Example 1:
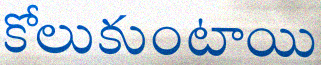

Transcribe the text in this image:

కోలుకుంటాయి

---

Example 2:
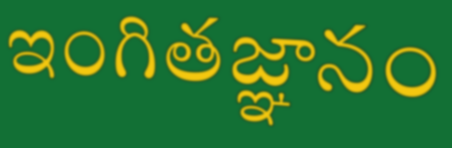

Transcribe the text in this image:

ఇంగితజ్ఞానం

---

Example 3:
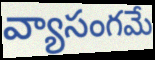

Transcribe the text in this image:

వ్యాసంగమే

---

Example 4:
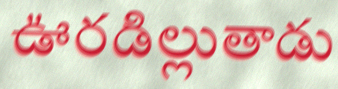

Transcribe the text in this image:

ఊరడిల్లుతాడు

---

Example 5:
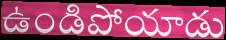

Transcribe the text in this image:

ఉండిపోయాడు